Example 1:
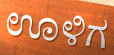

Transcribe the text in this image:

ಊಳಿಗ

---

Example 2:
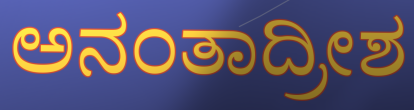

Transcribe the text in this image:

ಅನಂತಾದ್ರೀಶ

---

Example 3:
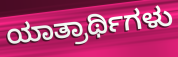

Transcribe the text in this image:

ಯಾತ್ರಾರ್ಥಿಗಳು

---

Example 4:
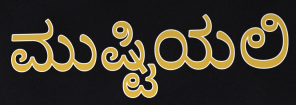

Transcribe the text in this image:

ಮುಷ್ಟಿಯಲಿ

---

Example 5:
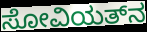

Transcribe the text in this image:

ಸೋವಿಯತ್‌ನ